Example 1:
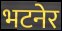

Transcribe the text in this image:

भटनेर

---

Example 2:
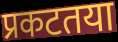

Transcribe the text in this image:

प्रकटतया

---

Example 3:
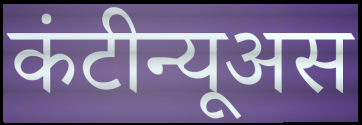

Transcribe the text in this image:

कंटीन्यूअस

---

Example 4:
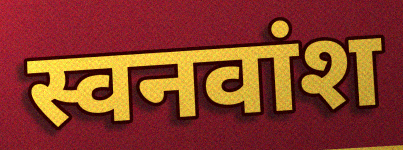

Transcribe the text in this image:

स्वनवांश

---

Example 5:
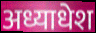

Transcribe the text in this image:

अध्याधेश